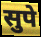
सुपे